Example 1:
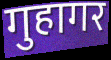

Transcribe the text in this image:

गुहागर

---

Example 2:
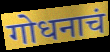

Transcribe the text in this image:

गोधनाचं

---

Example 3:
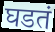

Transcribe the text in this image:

घडतं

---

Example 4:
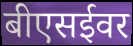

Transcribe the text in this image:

बीएसईवर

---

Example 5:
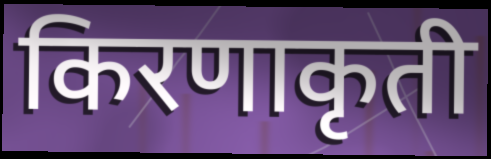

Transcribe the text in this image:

किरणाकृती